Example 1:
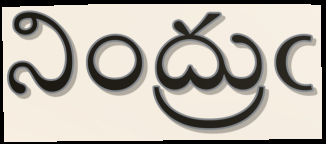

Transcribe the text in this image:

నింద్రుఁ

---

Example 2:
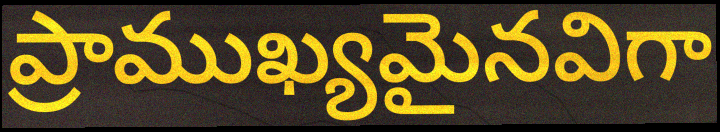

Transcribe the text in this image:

ప్రాముఖ్యమైనవిగా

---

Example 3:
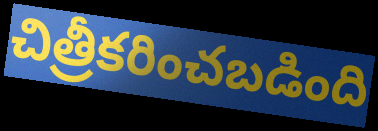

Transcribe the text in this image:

చిత్రీకరించబడింది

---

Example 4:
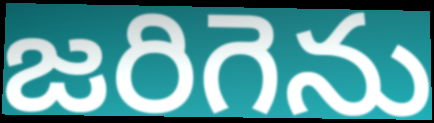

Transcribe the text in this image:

జరిగెను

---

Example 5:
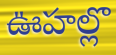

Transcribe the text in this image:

ఊహల్లొ